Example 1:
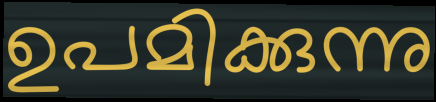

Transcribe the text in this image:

ഉപമിക്കുന്നു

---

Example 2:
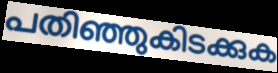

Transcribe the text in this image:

പതിഞ്ഞുകിടക്കുക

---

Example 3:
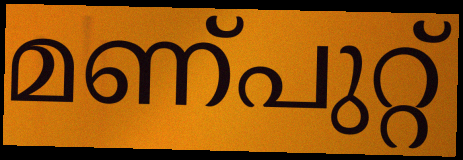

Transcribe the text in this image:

മണ്പുറ്റ്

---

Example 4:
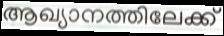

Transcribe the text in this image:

ആഖ്യാനത്തിലേക്ക്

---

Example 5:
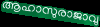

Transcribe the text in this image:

ആഹാസുരാജാവു